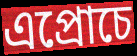
এপ্রোচে